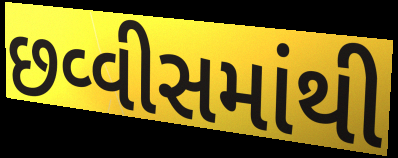
છવ્વીસમાંથી